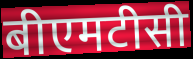
बीएमटीसी